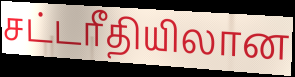
சட்டரீதியிலான